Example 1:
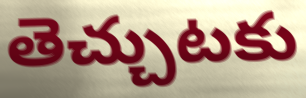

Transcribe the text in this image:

తెచ్చుటకు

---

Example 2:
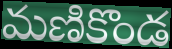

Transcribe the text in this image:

మణికొండ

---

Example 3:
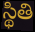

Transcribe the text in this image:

స్థితి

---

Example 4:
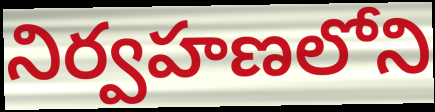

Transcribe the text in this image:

నిర్వహణలోని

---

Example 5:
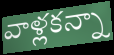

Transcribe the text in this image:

వాళ్లకన్నా